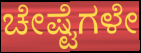
ಚೇಷ್ಟೆಗಳೇ